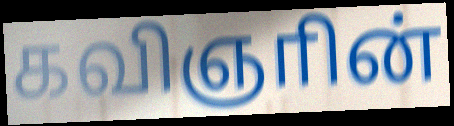
கவிஞரின்